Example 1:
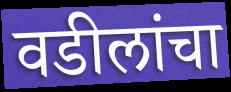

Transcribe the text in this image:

वडीलांचा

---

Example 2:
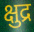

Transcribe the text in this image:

क्षुद्र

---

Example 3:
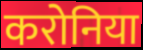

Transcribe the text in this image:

करोनिया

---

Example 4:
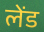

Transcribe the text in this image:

लेंड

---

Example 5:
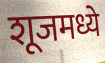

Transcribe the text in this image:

शूजमध्ये